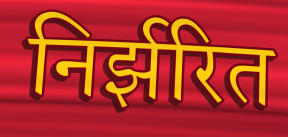
निर्झरित